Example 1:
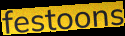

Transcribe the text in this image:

festoons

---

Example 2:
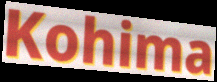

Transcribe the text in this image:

Kohima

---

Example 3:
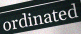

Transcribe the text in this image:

ordinated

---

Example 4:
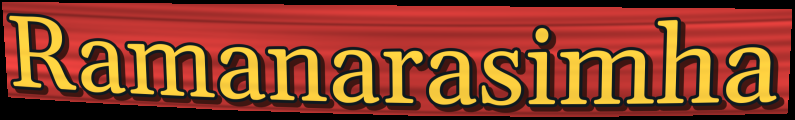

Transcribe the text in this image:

Ramanarasimha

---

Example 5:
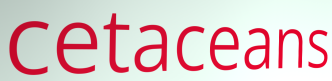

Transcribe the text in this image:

cetaceans